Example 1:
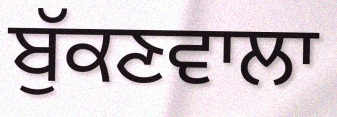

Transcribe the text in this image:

ਬੁੱਕਣਵਾਲਾ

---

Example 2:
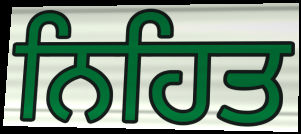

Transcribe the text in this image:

ਨਿਹਿਤ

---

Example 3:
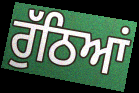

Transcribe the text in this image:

ਰੁੱਠਿਆਂ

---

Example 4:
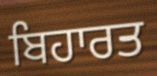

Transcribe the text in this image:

ਬਿਹਾਰਤ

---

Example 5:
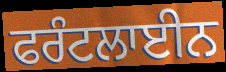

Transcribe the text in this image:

ਫਰੰਟਲਾਈਨ